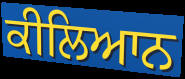
ਕੀਲਿਆਨ